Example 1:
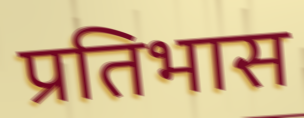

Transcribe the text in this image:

प्रतिभास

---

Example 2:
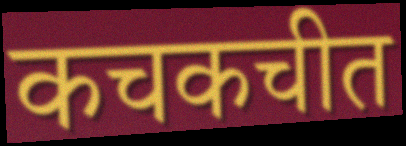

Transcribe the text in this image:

कचकचीत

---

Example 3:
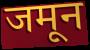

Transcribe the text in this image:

जमून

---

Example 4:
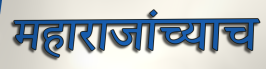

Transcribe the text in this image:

महाराजांच्याच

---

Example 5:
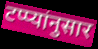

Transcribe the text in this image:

टप्प्यांनुसार